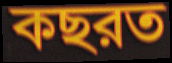
কছরত